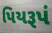
પિયરૂપં